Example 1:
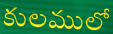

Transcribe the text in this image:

కులములో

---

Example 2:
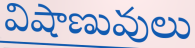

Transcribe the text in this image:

విషాణువులు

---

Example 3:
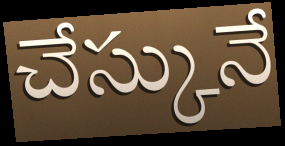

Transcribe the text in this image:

చేస్కునే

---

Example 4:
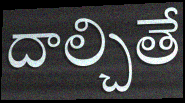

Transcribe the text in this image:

దాల్చితే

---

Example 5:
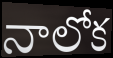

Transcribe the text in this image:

నాలోక